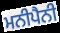
ਮਨੀਪੈਨੀ